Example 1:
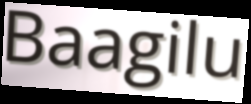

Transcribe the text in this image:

Baagilu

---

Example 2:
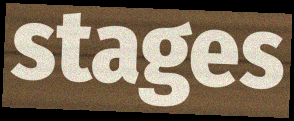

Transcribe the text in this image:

stages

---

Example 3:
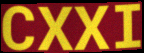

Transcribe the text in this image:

CXXI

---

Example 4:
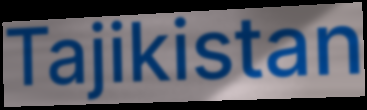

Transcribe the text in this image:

Tajikistan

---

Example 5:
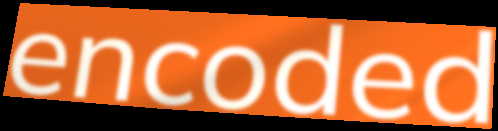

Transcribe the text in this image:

encoded